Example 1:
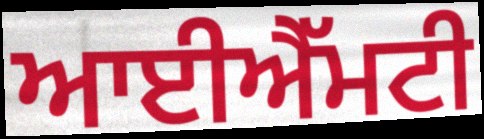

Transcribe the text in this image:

ਆਈਐੱਮਟੀ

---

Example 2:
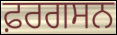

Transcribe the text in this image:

ਫ਼ਰਗਸਨ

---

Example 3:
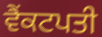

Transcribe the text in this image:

ਵੈਂਕਟਪਤੀ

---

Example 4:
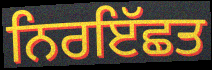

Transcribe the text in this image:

ਨਿਰਇੱਛਤ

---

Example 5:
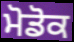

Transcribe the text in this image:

ਮੋਡੋਕ